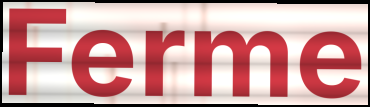
Ferme